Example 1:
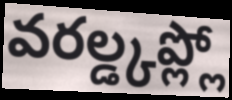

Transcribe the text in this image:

వరల్డ్కప్ల్లో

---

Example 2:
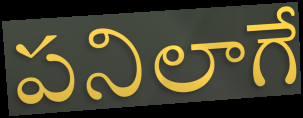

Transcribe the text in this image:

పనిలాగే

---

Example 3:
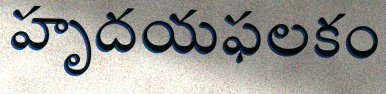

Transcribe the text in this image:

హృదయఫలకం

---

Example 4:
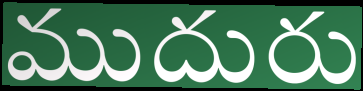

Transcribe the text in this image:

ముదురు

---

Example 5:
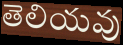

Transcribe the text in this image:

తెలియవు